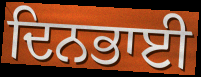
ਦਿਨਭਾਈ